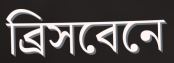
ব্রিসবেনে